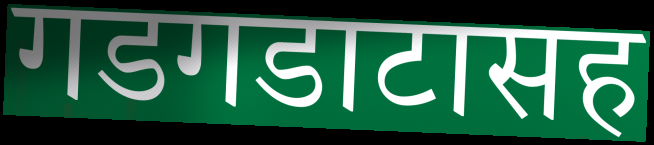
गडगडाटासह